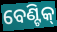
ବେଣ୍ଟିକ୍